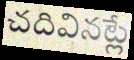
చదివినట్లే